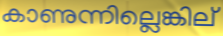
കാണുന്നില്ലെങ്കില്